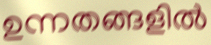
ഉന്നതങ്ങളിൽ